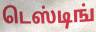
டெஸ்டிங்